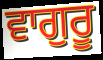
ਵਾਗੁਰੂ